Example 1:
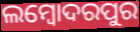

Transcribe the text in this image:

ଲମ୍ବୋଦରପୁର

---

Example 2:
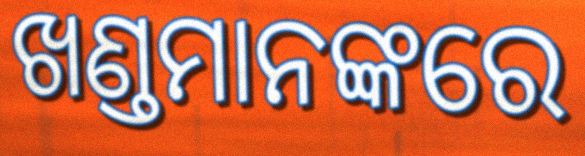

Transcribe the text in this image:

ଖଣ୍ଡମାନଙ୍କରେ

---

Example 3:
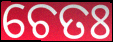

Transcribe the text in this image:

ଚେତଃ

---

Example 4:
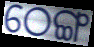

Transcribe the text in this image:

ଠେଙ୍ଗ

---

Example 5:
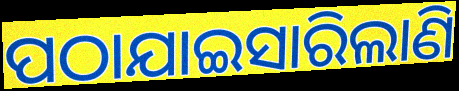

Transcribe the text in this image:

ପଠାଯାଇସାରିଲାଣି